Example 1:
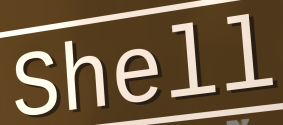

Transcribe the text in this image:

Shell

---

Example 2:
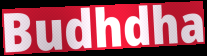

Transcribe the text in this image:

Budhdha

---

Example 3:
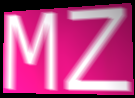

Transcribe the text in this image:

MZ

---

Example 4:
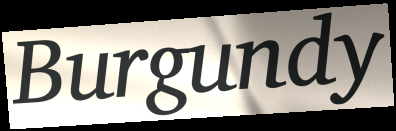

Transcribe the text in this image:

Burgundy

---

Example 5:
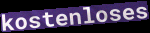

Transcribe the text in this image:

kostenloses